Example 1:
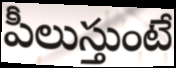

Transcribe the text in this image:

పీలుస్తుంటే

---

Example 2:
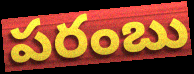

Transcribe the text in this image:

పరంబు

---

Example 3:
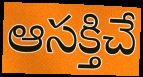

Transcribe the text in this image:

ఆసక్తిచే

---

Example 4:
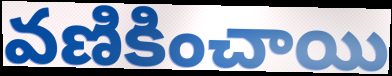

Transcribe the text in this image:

వణికించాయి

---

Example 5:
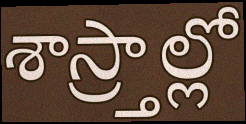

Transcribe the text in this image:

శాస్ర్తాల్లో